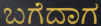
ಬಗೆದಾಗ